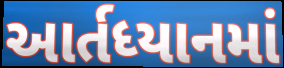
આર્તધ્યાનમાં